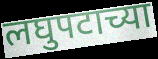
लघुपटाच्या